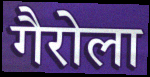
गैरोला